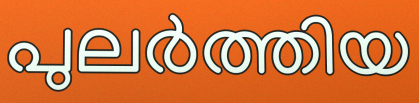
പുലർത്തിയ